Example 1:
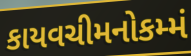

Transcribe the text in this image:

કાયવચીમનોકમ્મં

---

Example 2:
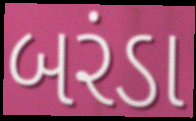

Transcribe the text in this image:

બરંડા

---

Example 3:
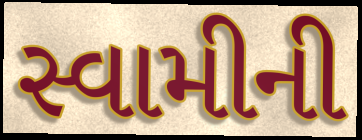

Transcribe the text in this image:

સ્વામીની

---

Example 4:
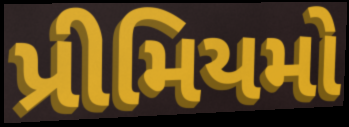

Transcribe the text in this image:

પ્રીમિયમો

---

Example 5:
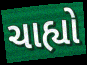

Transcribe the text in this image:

ચાહ્યો